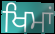
ਖਿਮਾਂ